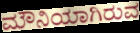
ಮೌನಿಯಾಗಿರುವ